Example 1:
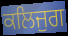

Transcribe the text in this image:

ਕਲਿਜੁਗ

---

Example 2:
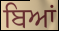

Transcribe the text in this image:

ਬਿਆਂ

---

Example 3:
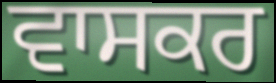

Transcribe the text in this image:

ਵਾਸਕਰ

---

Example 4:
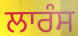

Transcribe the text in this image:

ਲਾਰੰਸ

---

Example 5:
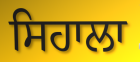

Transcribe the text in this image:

ਸਿਹਾਲਾ